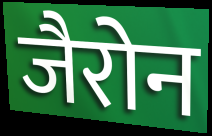
जैरोन